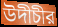
উদীচীর